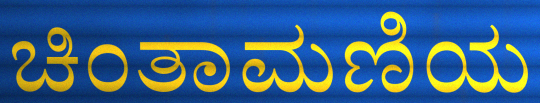
ಚಿಂತಾಮಣಿಯ